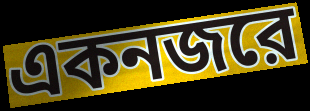
একনজরে